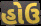
હોઉ